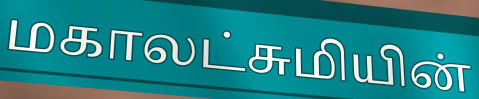
மகாலட்சுமியின்